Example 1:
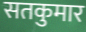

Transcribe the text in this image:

सतकुमार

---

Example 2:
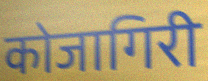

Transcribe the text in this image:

कोजागिरी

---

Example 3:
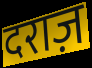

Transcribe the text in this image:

दराज़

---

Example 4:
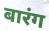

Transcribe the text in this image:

बारंग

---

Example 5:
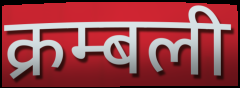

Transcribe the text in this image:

क्रम्बली